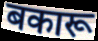
बकारू